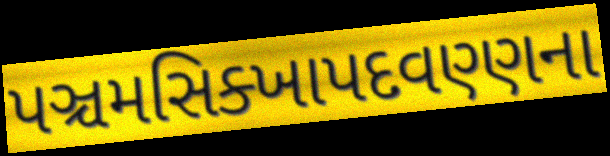
પઞ્ચમસિક્ખાપદવણ્ણના